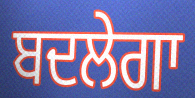
ਬਦਲੇਗਾ